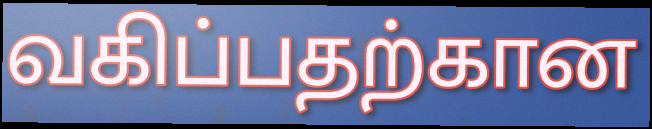
வகிப்பதற்கான